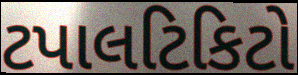
ટપાલટિકિટો